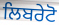
ਲਿਬਰੇਟੋ